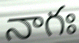
నాగః